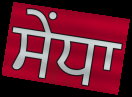
ਸੇਂਧਾ